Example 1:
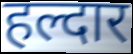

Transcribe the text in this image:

हल्दार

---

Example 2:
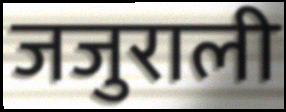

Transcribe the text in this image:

जजुराली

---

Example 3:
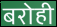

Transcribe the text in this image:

बरोही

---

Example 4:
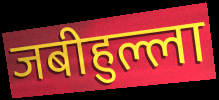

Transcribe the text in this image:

जबीहुल्ला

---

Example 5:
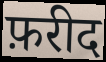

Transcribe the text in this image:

फ़रीद